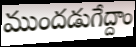
ముందడుగేద్దాం